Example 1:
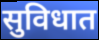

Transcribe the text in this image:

सुविधात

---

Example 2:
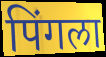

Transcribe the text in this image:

पिंगला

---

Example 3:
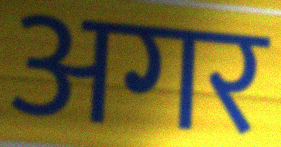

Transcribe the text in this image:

अगर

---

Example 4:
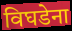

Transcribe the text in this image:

विघडेना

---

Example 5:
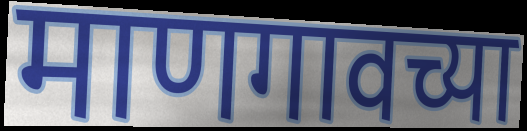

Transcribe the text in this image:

माणगावच्या